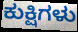
ಕುಕ್ಷಿಗಳು